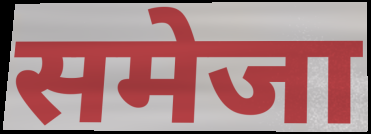
समेजा